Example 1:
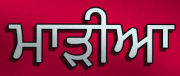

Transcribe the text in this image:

ਮਾੜੀਆ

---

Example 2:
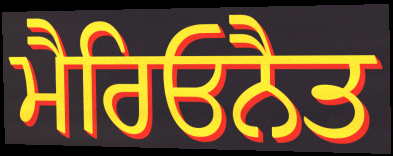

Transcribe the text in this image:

ਮੈਰਿਓਨੈਤ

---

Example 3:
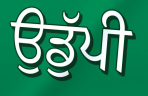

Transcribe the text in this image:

ਉਡੁੱਪੀ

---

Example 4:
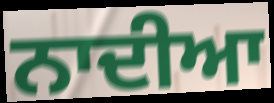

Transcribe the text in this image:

ਨਾਦੀਆ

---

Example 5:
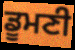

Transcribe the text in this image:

ਡੂਮਣੀ